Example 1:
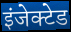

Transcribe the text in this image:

इंजेक्टेड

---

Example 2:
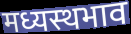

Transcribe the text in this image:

मध्यस्थभाव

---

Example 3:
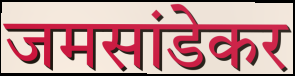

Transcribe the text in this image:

जमसांडेकर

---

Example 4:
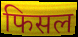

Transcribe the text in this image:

फिसल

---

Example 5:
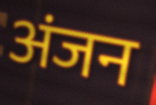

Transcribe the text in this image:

अंजन